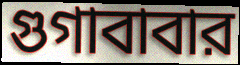
গুগাবাবার